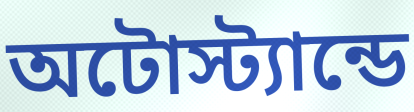
অটোস্ট্যান্ডে